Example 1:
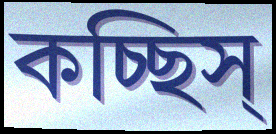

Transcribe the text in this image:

কচ্ছিস্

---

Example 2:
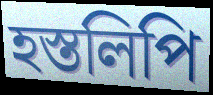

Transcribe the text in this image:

হস্তলিপি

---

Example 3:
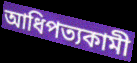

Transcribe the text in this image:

আধিপত্যকামী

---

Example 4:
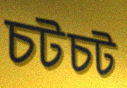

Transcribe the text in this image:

চটচট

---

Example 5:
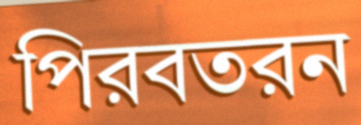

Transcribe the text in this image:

পিরবতরন